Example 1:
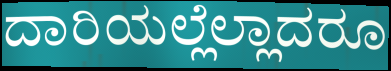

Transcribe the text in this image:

ದಾರಿಯಲ್ಲೆಲ್ಲಾದರೂ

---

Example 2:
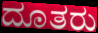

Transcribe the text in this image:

ದೂತರು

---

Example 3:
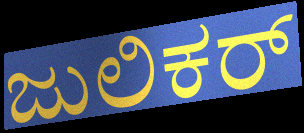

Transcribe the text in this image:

ಜುಲಿಕರ್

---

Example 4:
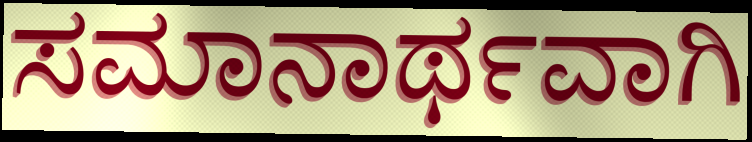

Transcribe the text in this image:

ಸಮಾನಾರ್ಥವಾಗಿ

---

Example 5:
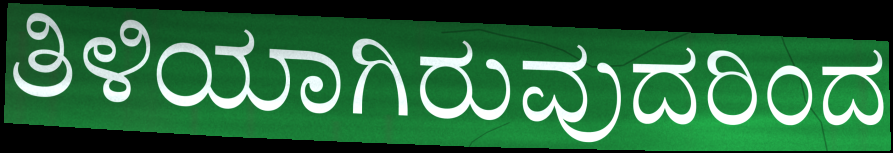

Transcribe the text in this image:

ತಿಳಿಯಾಗಿರುವುದರಿಂದ